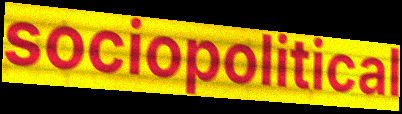
sociopolitical